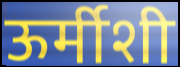
ऊर्मीशी